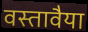
वस्तावैया